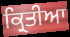
ਕ੍ਰਿਤੀਆ